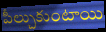
పీల్చుకుంటాయి